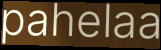
pahelaa